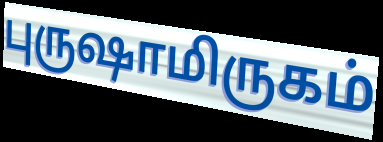
புருஷாமிருகம்